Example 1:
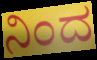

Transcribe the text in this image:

ನಿಂದ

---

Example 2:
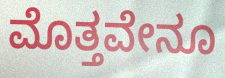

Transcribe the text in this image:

ಮೊತ್ತವೇನೂ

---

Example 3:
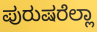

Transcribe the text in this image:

ಪುರುಷರೆಲ್ಲಾ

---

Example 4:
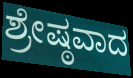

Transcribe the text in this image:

ಶ್ರೇಷ್ಠವಾದ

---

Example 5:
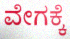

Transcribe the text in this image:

ವೇಗಕ್ಕೆ